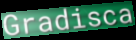
Gradisca